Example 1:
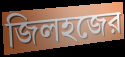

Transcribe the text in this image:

জিলহজের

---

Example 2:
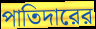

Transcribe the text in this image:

পাতিদারের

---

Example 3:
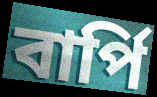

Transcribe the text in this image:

বার্পি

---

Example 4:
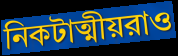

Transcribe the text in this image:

নিকটাত্মীয়রাও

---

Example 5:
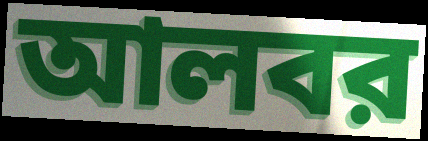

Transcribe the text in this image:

আলবর